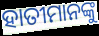
ହାତୀମାନଙ୍କୁ